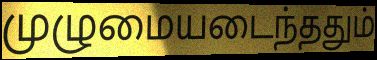
முழுமையடைந்ததும்